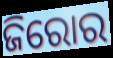
ଜିରୋର